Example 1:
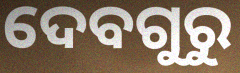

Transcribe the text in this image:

ଦେବଗୁରୁ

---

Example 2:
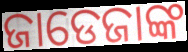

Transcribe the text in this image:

ଜାଡେଜାଙ୍କ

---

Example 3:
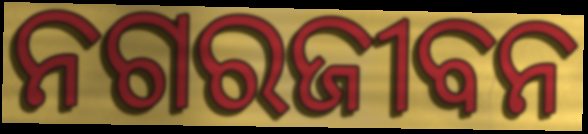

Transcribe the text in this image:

ନଗରଜୀବନ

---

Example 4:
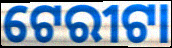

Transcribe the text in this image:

ଟେରୀଟା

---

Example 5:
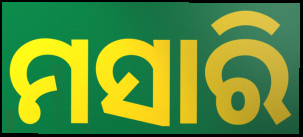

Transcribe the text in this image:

ମସାରି